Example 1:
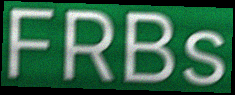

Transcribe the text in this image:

FRBs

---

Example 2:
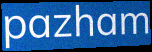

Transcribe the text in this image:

pazham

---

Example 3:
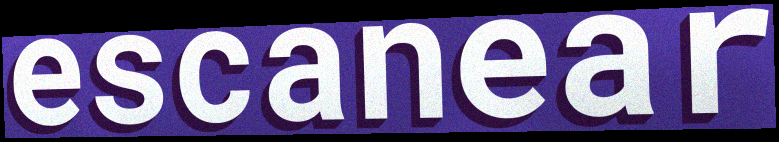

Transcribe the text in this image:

escanear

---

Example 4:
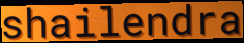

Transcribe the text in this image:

shailendra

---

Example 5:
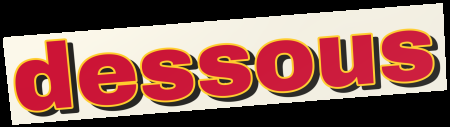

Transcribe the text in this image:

dessous